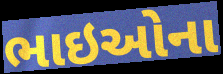
ભાઇઓના